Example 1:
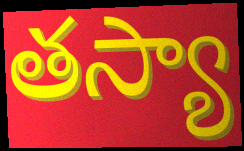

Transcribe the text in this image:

తస్యా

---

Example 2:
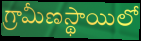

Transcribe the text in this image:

గ్రామీణస్థాయిలో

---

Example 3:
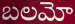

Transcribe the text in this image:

బలమో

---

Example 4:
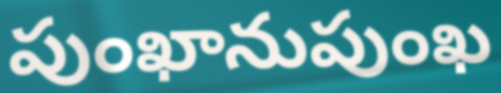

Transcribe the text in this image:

పుంఖానుపుంఖ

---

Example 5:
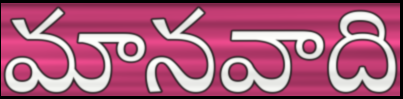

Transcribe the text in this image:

మానవాది